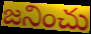
జనించు